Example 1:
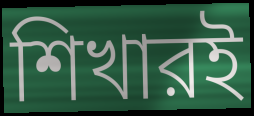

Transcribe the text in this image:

শিখারই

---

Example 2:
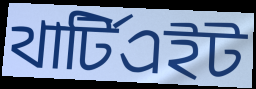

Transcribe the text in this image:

থার্টিএইট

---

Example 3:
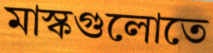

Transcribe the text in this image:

মাস্কগুলোতে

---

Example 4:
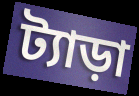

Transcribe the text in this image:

ট্যাড়া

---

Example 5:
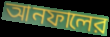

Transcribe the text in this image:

আনফালের